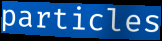
particles